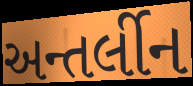
અન્તર્લીન